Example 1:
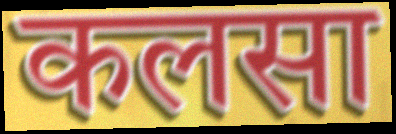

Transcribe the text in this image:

कलसा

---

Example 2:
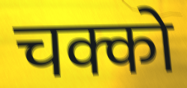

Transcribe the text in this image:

चक्को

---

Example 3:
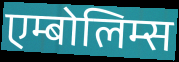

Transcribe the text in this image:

एम्बोलिम्स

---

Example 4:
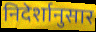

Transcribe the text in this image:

निदेर्शानुसार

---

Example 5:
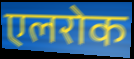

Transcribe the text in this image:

एलरोक